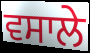
ਵਸਾਲੇ